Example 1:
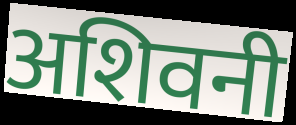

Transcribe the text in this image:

अशिवनी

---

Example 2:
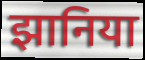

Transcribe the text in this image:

झानिया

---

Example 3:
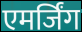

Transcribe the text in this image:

एमर्जिंग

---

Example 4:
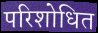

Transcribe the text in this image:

परिशोधित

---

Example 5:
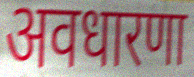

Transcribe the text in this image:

अवधारणा